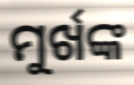
ମୁର୍ଖଙ୍କ